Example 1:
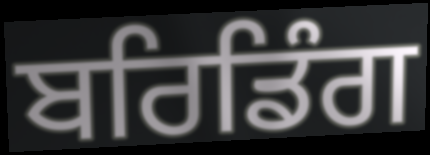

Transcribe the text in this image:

ਬਰਿਡਿੰਗ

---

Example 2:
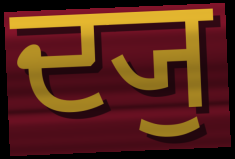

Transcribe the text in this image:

ਦ੍ਯੁ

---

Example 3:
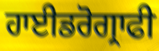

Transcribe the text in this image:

ਹਾਈਡਰੋਗ੍ਰਾਫੀ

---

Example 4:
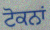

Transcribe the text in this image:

ਟੋਕਨਾਂ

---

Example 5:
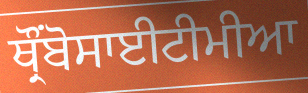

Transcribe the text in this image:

ਥ੍ਰੌਂਬੋਸਾਈਟੀਮੀਆ